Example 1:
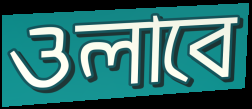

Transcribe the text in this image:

ওলাবে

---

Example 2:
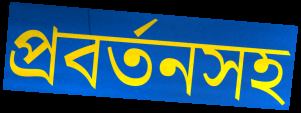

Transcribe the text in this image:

প্রবর্তনসহ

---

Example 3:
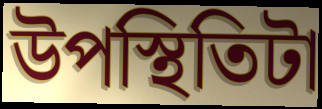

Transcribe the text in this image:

উপস্থিতিটা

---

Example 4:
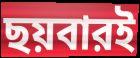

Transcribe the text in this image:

ছয়বারই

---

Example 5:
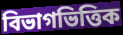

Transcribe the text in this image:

বিভাগভিত্তিক